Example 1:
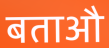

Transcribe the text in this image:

बताऔ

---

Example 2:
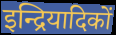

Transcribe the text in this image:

इन्द्रियादिकों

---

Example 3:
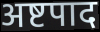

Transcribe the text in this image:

अष्टपाद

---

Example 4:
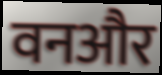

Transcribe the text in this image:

वनऔर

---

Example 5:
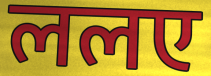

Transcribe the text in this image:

ललए